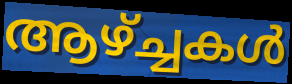
ആഴ്ച്ചകൾ